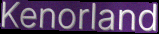
Kenorland